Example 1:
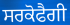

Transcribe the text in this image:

ਸਰਕੋਫੈਗੀ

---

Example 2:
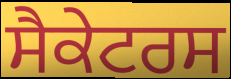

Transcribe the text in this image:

ਸੈਕੇਟਰਸ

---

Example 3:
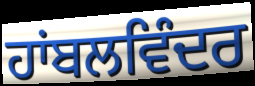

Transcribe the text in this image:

ਹਾਂਬਲਵਿੰਦਰ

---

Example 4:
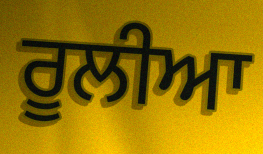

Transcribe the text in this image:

ਰੂਲੀਆ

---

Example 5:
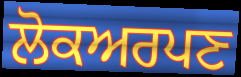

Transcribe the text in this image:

ਲੋਕਅਰਪਣ